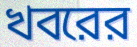
খবরের